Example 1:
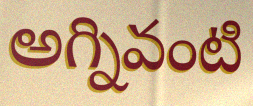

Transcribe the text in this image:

అగ్నివంటి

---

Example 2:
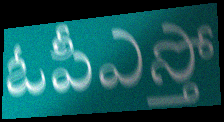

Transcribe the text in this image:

ఓపీఎస్తో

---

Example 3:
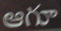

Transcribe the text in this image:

ఆగూ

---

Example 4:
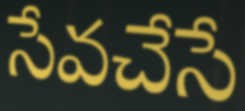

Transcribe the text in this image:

సేవచేసే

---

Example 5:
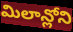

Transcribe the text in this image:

మిలాన్లోని